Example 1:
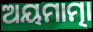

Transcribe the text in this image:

ଅୟମାତ୍ମା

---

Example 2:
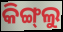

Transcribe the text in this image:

କିଙ୍ଗ୍‌ଲୁ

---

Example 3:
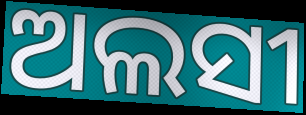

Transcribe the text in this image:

ଅଲସୀ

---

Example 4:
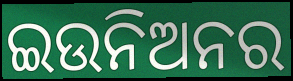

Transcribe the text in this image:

ଇଉନିଅନର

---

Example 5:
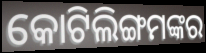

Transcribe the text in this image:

କୋଟିଲିଙ୍ଗମଙ୍କର